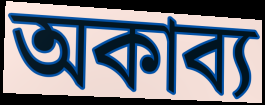
অকাব্য